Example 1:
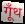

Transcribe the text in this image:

गूँथ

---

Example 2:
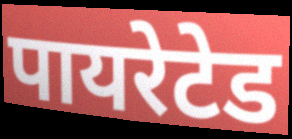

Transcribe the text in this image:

पायरेटेड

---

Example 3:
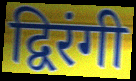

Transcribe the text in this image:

द्विरंगी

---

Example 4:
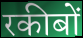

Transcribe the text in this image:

रकीबों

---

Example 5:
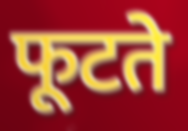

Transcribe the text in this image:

फूटते